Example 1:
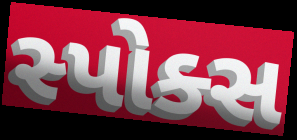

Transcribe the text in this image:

સ્પોક્સ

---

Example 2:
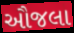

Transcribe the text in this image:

ઔજલા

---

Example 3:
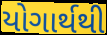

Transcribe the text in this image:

યોગાર્થથી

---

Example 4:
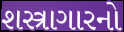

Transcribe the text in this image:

શસ્ત્રાગારનો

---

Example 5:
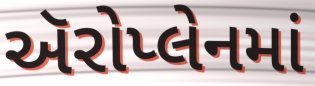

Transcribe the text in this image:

ઍરોપ્લેનમાં